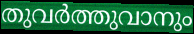
തുവർത്തുവാനും